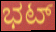
ಭಟ್